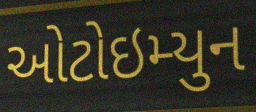
ઓટોઇમ્યુન